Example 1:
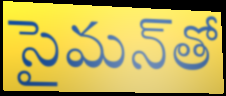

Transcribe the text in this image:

సైమన్‌తో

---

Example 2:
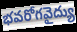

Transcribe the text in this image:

భవరోగవైద్యు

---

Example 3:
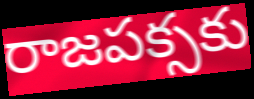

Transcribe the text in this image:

రాజపక్సకు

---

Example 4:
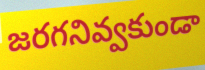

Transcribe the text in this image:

జరగనివ్వకుండా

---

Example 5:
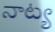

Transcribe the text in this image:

నాట్య